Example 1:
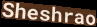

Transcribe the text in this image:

Sheshrao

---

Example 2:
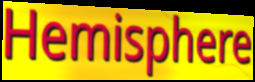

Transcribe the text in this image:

Hemisphere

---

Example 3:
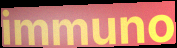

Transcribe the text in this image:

immuno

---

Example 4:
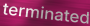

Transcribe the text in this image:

terminated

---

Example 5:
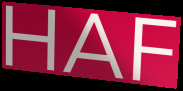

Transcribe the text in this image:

HAF